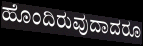
ಹೊಂದಿರುವುದಾದರೂ